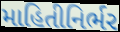
માહિતીનિર્ભર